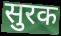
सुरक